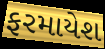
ફરમાયેશ